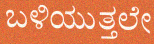
ಬಳಿಯುತ್ತಲೇ